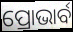
ପ୍ରୋଭାର୍ବ